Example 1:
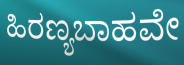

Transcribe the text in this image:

ಹಿರಣ್ಯಬಾಹವೇ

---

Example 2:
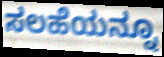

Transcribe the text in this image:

ಸಲಹೆಯನ್ನೂ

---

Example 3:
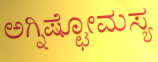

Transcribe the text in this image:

ಅಗ್ನಿಷ್ಟೋಮಸ್ಯ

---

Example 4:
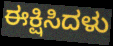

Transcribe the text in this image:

ಈಕ್ಷಿಸಿದಳು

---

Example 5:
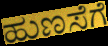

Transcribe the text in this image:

ಹುಣಸೆಗೆ